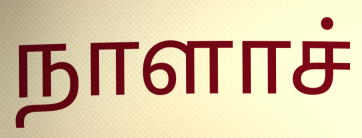
நாளாச்